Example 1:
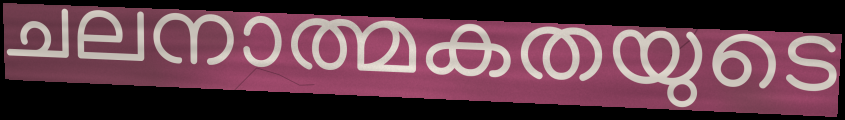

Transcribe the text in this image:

ചലനാത്മകതയുടെ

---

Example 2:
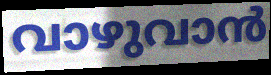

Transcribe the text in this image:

വാഴുവാൻ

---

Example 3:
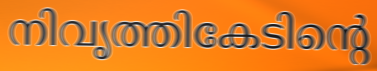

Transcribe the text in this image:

നിവൃത്തികേടിന്റെ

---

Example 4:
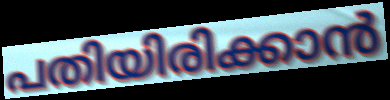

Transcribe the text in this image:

പതിയിരിക്കാൻ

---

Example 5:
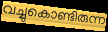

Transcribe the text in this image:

വച്ചുകൊണ്ടിരുന്ന